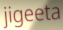
jigeeta